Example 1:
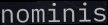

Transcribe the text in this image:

nominis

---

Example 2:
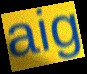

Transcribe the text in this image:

aig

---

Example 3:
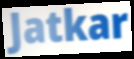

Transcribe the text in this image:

Jatkar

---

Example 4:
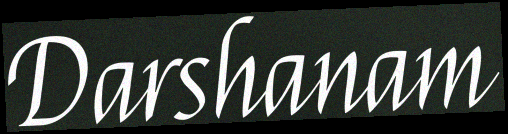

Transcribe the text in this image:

Darshanam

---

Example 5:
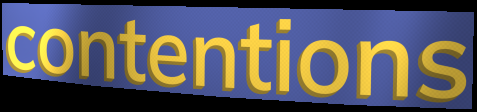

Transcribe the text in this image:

contentions